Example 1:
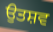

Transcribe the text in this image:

ਉਤਸ਼ਵ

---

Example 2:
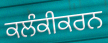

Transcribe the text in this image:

ਕਲੰਕੀਕਰਨ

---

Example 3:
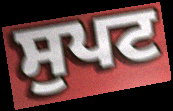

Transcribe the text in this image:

ਸੁਪਟ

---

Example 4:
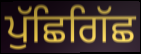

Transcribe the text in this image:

ਪੁੱਛਿਗਿੱਛ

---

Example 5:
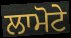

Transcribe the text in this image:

ਲਾਮੋਟੇ